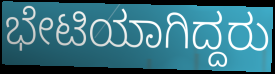
ಭೇಟಿಯಾಗಿದ್ದರು